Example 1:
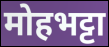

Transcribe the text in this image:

मोहभट्टा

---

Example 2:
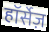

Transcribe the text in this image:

हॉर्सेज़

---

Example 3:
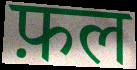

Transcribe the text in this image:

फ़ल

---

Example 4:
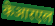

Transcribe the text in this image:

केआरएल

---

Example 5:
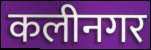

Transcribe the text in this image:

कलीनगर